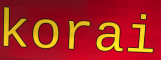
korai